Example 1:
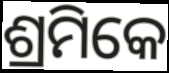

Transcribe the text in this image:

ଶ୍ରମିକେ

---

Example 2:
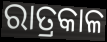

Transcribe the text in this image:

ରାତ୍ରକାଳ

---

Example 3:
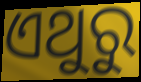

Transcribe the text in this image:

ଏଥୁରୁ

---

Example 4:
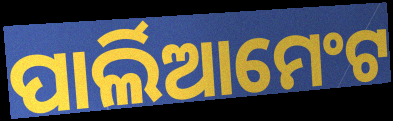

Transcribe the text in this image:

ପାର୍ଲିଆମେଂଟ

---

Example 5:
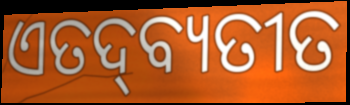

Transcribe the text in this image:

ଏତଦ୍‍ବ୍ୟତୀତ